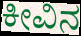
ಕೀವಿನ